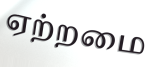
ஏற்றமை